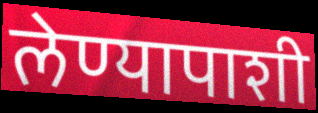
लेण्यापाशी